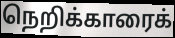
நெறிக்காரைக்